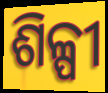
ଶିଳ୍ପୀ